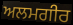
ਅਲਮਗੀਰ